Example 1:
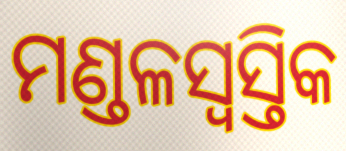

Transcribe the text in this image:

ମଣ୍ଡଳସ୍ୱସ୍ତିକ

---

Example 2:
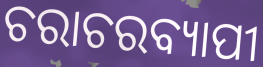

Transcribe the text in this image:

ଚରାଚରବ୍ୟାପୀ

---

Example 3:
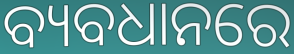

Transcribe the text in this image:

ବ୍ୟବଧାନରେ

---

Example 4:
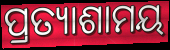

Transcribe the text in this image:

ପ୍ରତ୍ୟାଶାମୟ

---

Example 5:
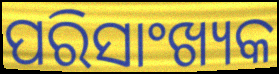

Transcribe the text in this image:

ପରିସାଂଖ୍ୟକ